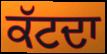
ਕੱਟਦਾ